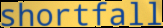
shortfall